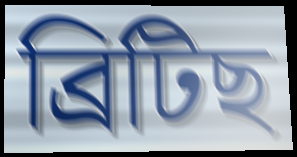
ব্ৰিটিছ